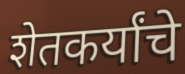
शेतकर्यांचे